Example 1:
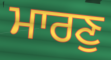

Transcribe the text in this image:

ਮਾਰਣੁ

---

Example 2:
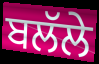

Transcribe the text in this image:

ਬਲੱਲੇ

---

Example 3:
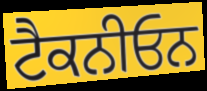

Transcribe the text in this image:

ਟੈਕਨੀਓਨ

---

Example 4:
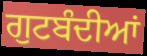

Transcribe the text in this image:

ਗੁਟਬੰਦੀਆਂ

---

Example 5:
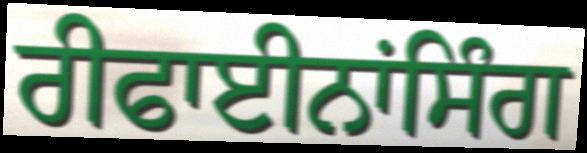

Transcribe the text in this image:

ਰੀਫਾਈਨਾਂਸਿੰਗ